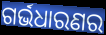
ଗର୍ଭଧାରଣର